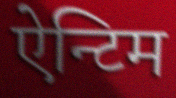
ऐन्टिम